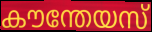
കൗന്തേയസ്